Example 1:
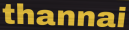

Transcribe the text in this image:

thannai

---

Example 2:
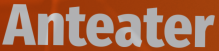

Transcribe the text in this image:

Anteater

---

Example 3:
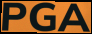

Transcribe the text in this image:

PGA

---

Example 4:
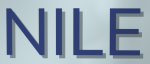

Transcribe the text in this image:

NILE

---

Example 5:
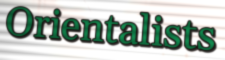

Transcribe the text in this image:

Orientalists